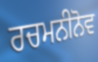
ਰਚਮਨੀਨੋਵ